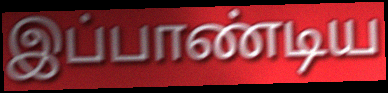
இப்பாண்டிய